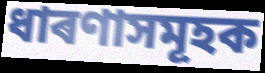
ধাৰণাসমূহক